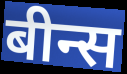
बीन्स